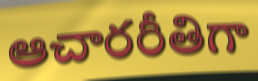
ఆచారరీతిగా